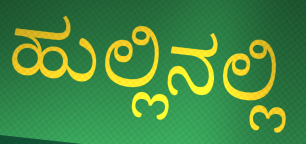
ಹುಲ್ಲಿನಲ್ಲಿ